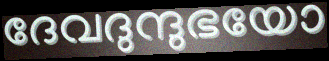
ദേവദുന്ദുഭയോ